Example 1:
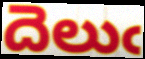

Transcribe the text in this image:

దెలుఁ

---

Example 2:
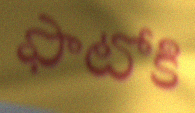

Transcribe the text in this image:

ఫొటోకి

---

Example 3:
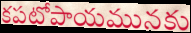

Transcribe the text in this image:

కపటోపాయమునకు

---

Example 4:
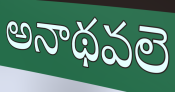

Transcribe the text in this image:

అనాథవలె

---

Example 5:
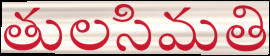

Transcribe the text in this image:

తులసిమతి